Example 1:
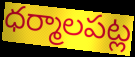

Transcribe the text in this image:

ధర్మాలపట్ల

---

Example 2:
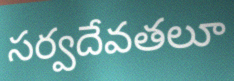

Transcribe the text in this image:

సర్వదేవతలూ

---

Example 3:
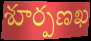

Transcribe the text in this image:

శూర్పణఖ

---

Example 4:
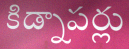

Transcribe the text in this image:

కిడ్నాపర్లు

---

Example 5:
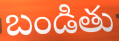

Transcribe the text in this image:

బండితు